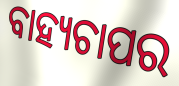
ବାହ୍ୟଚାପର